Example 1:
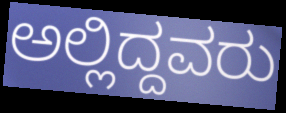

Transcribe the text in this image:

ಅಲ್ಲಿದ್ದವರು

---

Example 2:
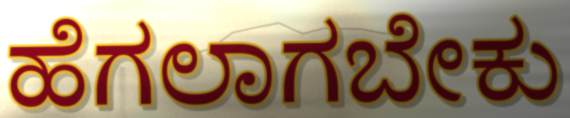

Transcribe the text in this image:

ಹೆಗಲಾಗಬೇಕು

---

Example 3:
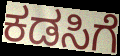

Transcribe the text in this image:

ಕಡಸಿಗೆ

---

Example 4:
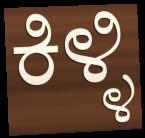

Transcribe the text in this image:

ಕಿಳ್ಳಿ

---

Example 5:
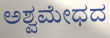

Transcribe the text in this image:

ಅಶ್ವಮೇಧದ